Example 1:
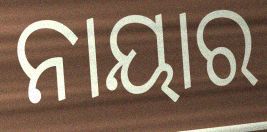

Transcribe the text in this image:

ନାୟାର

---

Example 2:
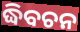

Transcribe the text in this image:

ଦ୍ଧିବଚନ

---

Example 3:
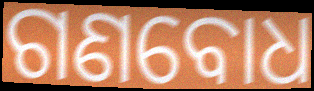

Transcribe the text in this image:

ଗଣବୋଧ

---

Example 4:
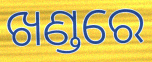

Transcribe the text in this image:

ଖଣ୍ଡରେ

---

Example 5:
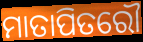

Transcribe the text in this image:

ମାତାପିତରୌ